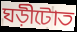
ঘড়ীটোত